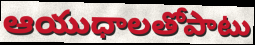
ఆయుధాలతోపాటు